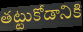
తట్టుకోడానికి